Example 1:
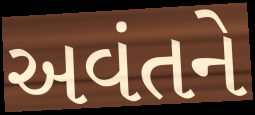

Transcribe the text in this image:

અવંતને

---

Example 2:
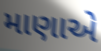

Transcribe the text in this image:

માણાએ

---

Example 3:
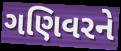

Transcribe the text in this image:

ગણિવરને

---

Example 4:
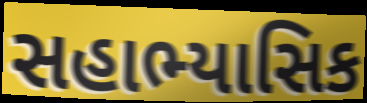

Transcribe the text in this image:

સહાભ્યાસિક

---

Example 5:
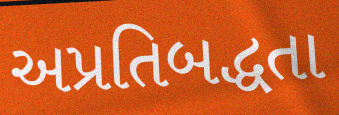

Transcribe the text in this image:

અપ્રતિબદ્ધતા